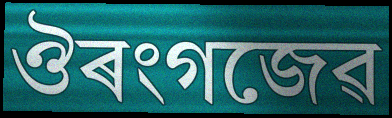
ঔৰংগজেৱ